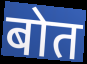
बोत